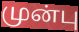
முன்பு